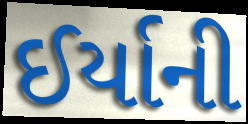
ઈર્યાની